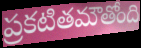
ప్రకటితమౌతోంది